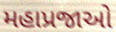
મહાપ્રજાઓ